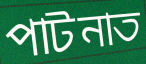
পাটনাত